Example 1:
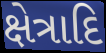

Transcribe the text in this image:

ક્ષેત્રાદિ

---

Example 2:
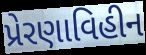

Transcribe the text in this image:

પ્રેરણાવિહીન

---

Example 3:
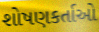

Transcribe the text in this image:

શોષણકર્તાઓ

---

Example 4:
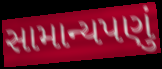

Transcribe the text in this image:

સામાન્યપણું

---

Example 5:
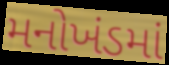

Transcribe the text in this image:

મનોખંડમાં